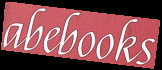
abebooks